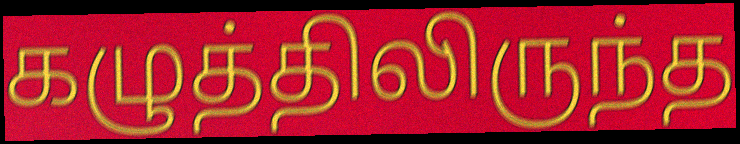
கழுத்திலிருந்த